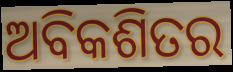
ଅବିକଶିତର